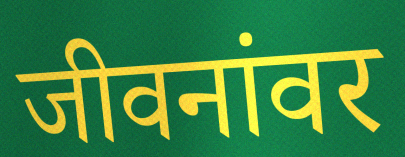
जीवनांवर